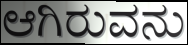
ಆಗಿರುವನು